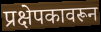
प्रक्षेपकावरून